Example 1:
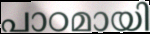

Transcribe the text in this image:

പാഠമായി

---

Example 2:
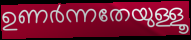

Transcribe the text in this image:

ഉണർന്നതേയുള്ളൂ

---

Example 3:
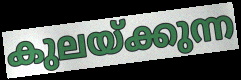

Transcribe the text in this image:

കുലയ്ക്കുന്ന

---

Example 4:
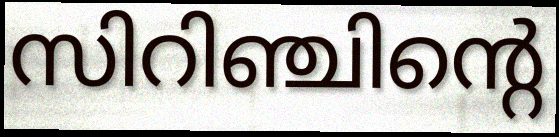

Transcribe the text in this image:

സിറിഞ്ചിന്റെ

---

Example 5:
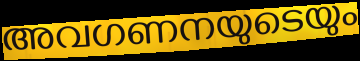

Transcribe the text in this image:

അവഗണനയുടെയും